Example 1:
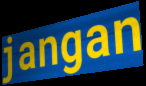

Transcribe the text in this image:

jangan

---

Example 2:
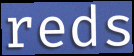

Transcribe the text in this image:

reds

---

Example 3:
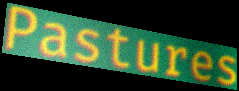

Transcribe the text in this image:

Pastures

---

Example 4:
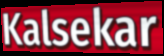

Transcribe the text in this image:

Kalsekar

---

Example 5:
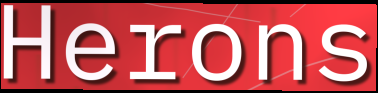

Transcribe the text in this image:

Herons